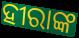
ହୀରାଙ୍କ